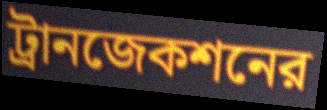
ট্রানজেকশনের